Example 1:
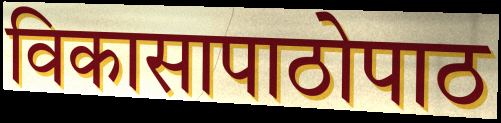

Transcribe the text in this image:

विकासापाठोपाठ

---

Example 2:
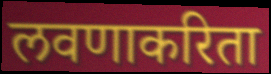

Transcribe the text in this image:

लवणाकरिता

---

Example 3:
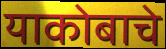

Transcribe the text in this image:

याकोबाचे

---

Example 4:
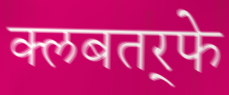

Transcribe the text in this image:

क्लबतर्फे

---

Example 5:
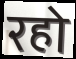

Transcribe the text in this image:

रहो